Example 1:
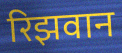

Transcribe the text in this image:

रिझवान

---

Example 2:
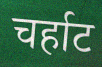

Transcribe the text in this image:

चर्हाट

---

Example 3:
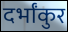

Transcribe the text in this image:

दर्भांकुर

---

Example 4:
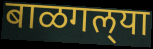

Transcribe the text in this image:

बाळगल्या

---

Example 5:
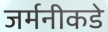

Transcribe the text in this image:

जर्मनीकडे